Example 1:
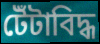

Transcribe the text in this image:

টেঁটাবিদ্ধ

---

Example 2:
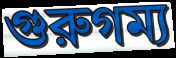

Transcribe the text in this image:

গুরুগম্য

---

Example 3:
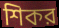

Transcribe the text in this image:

শিকর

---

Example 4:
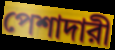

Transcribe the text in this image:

পেশাদারী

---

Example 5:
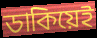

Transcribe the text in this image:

ডাকিয়েই